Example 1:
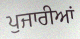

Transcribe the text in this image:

ਪੁਜਾਰੀਆਂ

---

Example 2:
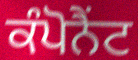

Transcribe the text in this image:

ਕੰਪੋਨੈਂਟ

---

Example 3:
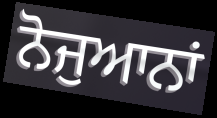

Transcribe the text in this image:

ਨੋਜੁਆਨਾਂ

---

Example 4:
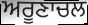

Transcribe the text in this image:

ਅਰੂਣਾਚਲ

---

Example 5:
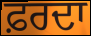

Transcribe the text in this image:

ਫ਼ਰਦਾ